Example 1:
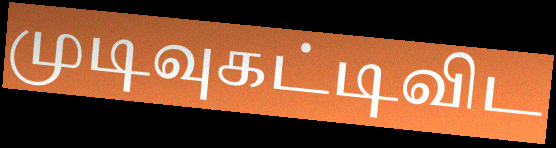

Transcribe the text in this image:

முடிவுகட்டிவிட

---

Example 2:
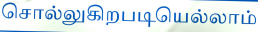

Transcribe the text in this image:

சொல்லுகிறபடியெல்லாம்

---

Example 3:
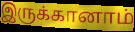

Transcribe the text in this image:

இருக்கானாம்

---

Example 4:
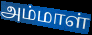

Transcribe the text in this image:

அம்மாள்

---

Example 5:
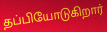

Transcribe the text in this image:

தப்பியோடுகிறார்